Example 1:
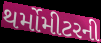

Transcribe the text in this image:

થર્મોમીટરની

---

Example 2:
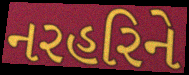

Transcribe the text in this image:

નરહરિને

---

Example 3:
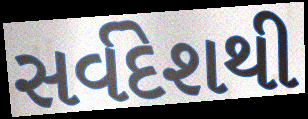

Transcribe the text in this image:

સર્વદેશથી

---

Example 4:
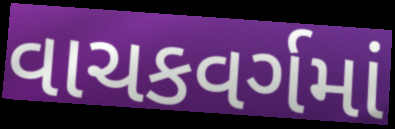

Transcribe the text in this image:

વાચકવર્ગમાં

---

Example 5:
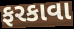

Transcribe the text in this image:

ફરકાવા